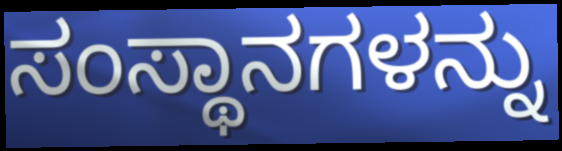
ಸಂಸ್ಥಾನಗಳನ್ನು